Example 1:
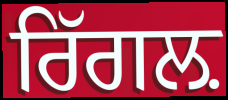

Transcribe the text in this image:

ਰਿੱਗਲ਼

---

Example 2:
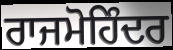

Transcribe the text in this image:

ਰਾਜਮੋਹਿੰਦਰ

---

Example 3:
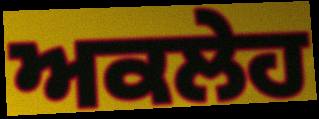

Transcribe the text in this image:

ਅਕਲੇਹ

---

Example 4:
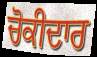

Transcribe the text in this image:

ਚੋਕੀਦਾਰ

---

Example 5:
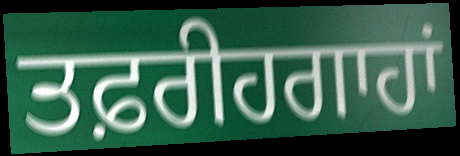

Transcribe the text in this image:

ਤਫ਼ਰੀਹਗਾਹਾਂ